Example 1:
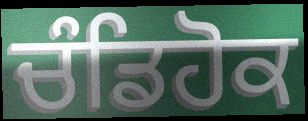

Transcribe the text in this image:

ਚੰਡਿਹੋਕ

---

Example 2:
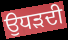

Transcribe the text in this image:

ਉਧੜਦੀ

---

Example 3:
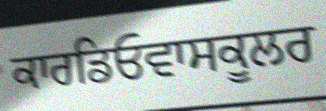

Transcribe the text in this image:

ਕਾਰਡਿਓਵਾਸਕੂਲਰ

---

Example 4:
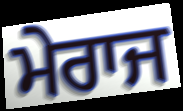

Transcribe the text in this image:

ਮੇਰਾਜ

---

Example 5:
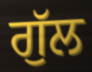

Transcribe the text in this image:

ਗੁੱਲ